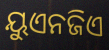
ୟୁଏନଜିଏ